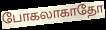
போகலாகாதோ